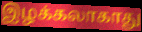
இழக்கலாகாது